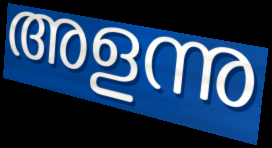
അളന്നു